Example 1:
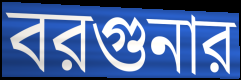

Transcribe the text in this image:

বরগুনার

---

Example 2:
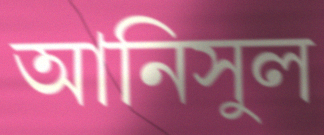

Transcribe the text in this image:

আনিসুল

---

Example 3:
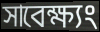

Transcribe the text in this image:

সাবেক্ষ্যং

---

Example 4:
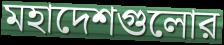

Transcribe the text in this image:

মহাদেশগুলোর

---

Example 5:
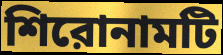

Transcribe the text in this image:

শিরোনামটি